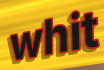
whit